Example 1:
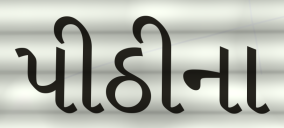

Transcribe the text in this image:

પીઠીના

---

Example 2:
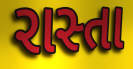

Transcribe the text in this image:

રાસ્તા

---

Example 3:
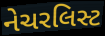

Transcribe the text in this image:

નેચરલિસ્ટ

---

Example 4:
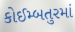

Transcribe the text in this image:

કોઈમ્બતુરમાં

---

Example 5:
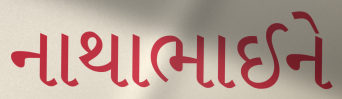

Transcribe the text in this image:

નાથાભાઈને